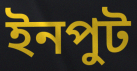
ইনপুট